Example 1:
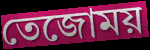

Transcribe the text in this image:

তেজোময়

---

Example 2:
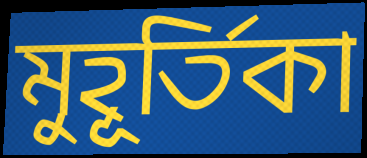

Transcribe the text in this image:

মুহূর্তিকা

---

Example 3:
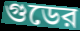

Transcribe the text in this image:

গুডের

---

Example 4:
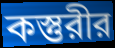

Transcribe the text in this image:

কস্তুরীর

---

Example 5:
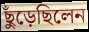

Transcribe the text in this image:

ছুঁড়েছিলেন